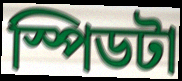
স্পিডটা